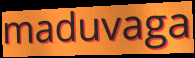
maduvaga